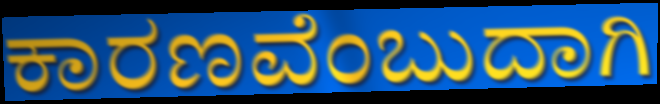
ಕಾರಣವೆಂಬುದಾಗಿ